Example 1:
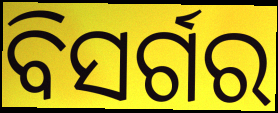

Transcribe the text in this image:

ବିସର୍ଗର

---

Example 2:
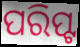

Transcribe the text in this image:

ପରିପ୍ଟ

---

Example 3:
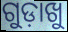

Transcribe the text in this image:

ଗୁଡ଼ାଖୁ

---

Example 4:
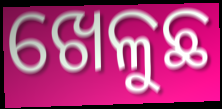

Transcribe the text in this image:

ଖେଳୁଛ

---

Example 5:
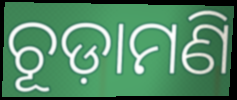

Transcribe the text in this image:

ଚୂଡ଼ାମଣି